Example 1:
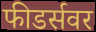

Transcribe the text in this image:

फीडर्सवर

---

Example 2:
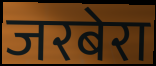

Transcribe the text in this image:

जरबेरा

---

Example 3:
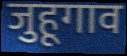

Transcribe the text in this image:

जुहूगाव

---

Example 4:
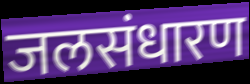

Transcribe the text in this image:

जलसंधारण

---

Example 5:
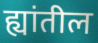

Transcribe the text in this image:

ह्यांतील